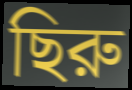
ছিরু